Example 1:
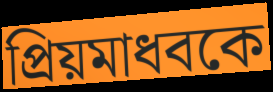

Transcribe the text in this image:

প্রিয়মাধবকে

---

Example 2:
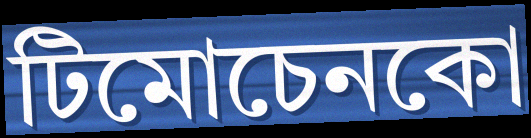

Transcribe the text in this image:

টিমোচেনকো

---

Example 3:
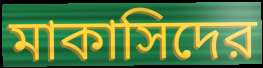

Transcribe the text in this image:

মাকাসিদের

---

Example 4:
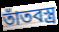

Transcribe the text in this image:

তাঁতবস্ত্র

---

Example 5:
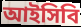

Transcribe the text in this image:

আইসিবি